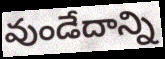
వుండేదాన్ని